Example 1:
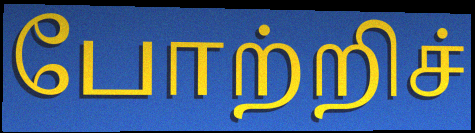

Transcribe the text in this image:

போற்றிச்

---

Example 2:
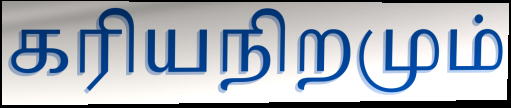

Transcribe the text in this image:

கரியநிறமும்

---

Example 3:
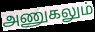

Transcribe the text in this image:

அணுகலும்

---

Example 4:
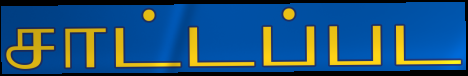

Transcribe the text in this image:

சாட்டப்பட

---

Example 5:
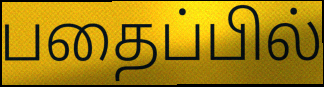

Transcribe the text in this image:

பதைப்பில்